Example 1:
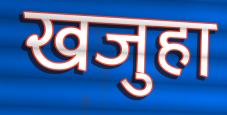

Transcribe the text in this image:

खजुहा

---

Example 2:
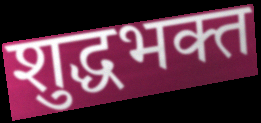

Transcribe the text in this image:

शुद्धभक्त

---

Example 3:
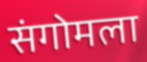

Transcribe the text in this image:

संगोमला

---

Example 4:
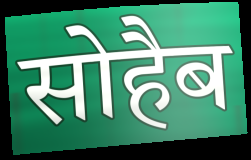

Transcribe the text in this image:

सोहैब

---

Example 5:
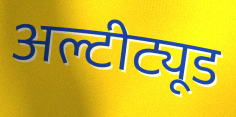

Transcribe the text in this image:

अल्टीट्यूड